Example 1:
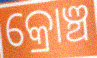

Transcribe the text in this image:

କ୍ରୋଞ୍ଚ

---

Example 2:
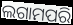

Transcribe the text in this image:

ଲଗାମପରି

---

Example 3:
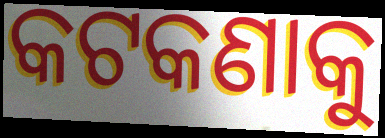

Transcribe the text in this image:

କଟକଣାକୁ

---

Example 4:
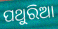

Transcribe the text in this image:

ପଥୁରିଆ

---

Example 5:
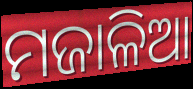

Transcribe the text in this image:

ମଜାଳିଆ